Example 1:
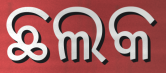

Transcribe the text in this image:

ଛଲକ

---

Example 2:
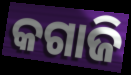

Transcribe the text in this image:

କଗାଜି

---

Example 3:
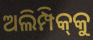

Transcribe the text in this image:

ଅଲିମ୍ପିକ୍‌କୁ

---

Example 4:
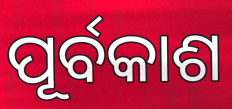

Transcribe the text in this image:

ପୂର୍ବକାଶ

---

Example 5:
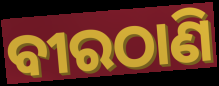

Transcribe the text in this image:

ବୀରଠାଣି